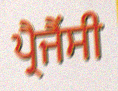
ਪ੍ਰੈਜੈਂਸੀ